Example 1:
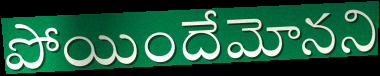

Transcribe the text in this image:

పోయిందేమోనని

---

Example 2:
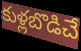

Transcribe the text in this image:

కుళ్లబొడిచే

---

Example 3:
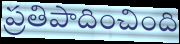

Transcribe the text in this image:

ప్రతిపాదించింది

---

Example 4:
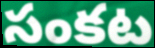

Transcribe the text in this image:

సంకట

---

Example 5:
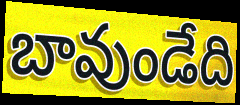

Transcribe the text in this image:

బావుండేది